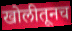
खोलीतूनच